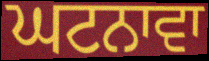
ਘਟਨਾਵਾ